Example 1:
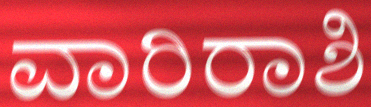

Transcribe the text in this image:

ವಾರಿರಾಶಿ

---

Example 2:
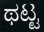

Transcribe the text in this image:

ಥಟ್ಟ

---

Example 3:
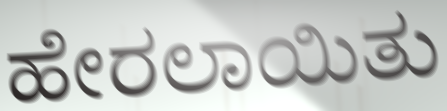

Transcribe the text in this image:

ಹೇರಲಾಯಿತು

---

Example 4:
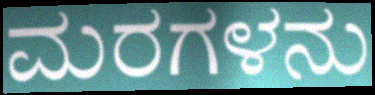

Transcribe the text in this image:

ಮರಗಳನು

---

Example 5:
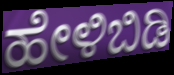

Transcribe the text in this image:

ಹೇಳಿಬಿಡಿ